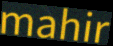
mahir